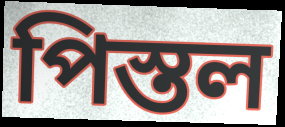
পিস্তল